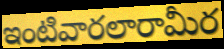
ఇంటివారలారామీర